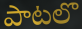
పాటలొ